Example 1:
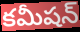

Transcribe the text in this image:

కమీషన్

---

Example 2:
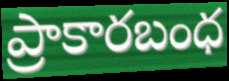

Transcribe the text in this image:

ప్రాకారబంధ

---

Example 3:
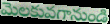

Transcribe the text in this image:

మెలకువగానుండి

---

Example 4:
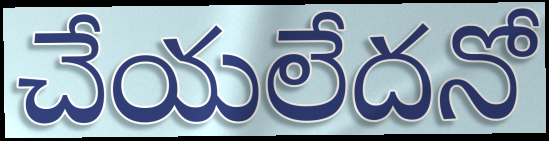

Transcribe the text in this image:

చేయలేదనో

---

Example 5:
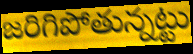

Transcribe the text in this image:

జరిగిపోతున్నట్టు